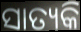
ସାତ୍ୟକି